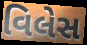
વિલેસ